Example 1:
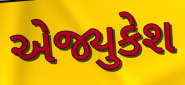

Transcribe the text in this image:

એજ્યુકેશ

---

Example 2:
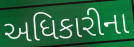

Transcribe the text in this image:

અધિકારીના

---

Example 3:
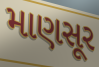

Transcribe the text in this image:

માણસૂર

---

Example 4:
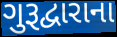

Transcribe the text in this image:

ગુરૂદ્વારાના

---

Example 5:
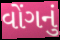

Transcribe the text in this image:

વોંગનું